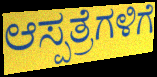
ಆಸ್ಪತ್ರೆಗಳಿಗೆ